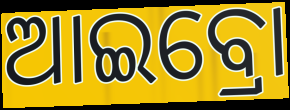
ଆଇବ୍ରୋ